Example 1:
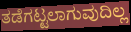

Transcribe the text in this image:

ತಡೆಗಟ್ಟಲಾಗುವುದಿಲ್ಲ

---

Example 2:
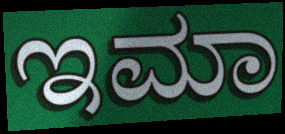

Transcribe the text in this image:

ಇಮಾ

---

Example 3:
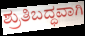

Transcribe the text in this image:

ಶ್ರುತಿಬದ್ಧವಾಗಿ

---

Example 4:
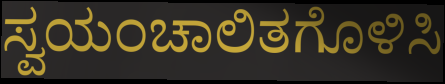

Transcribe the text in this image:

ಸ್ವಯಂಚಾಲಿತಗೊಳಿಸಿ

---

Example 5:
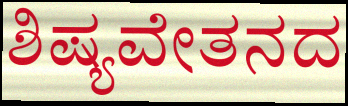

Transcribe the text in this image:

ಶಿಷ್ಯವೇತನದ